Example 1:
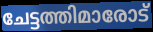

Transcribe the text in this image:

ചേട്ടത്തിമാരോട്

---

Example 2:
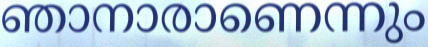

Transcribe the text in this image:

ഞാനാരാണെന്നും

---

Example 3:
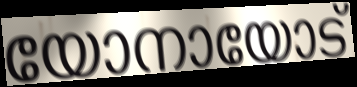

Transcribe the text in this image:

യോനായോട്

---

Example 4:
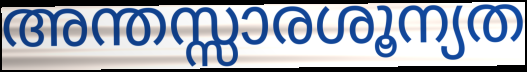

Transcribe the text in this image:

അന്തസ്സാരശൂന്യത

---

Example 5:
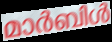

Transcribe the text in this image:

മാർബിൾ